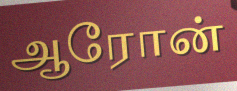
ஆரோன்